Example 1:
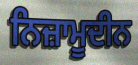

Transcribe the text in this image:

ਨਿਜ਼ਾਮੂਦੀਨ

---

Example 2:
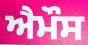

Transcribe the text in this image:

ਐਮੌਸ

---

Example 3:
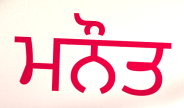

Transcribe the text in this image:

ਮਨੌਤ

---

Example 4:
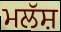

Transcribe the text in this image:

ਮਲੱਸ਼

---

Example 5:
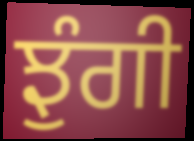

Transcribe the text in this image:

ਝੁੰਗੀ